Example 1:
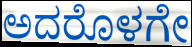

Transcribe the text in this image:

ಅದರೊಳಗೇ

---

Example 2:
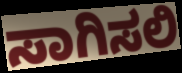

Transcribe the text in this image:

ಸಾಗಿಸಲಿ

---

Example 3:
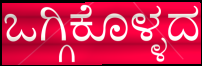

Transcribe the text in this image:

ಒಗ್ಗಿಕೊಳ್ಳದ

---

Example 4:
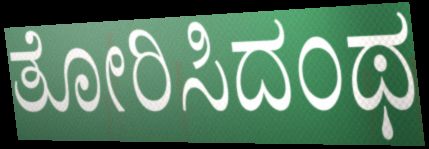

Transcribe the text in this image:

ತೋರಿಸಿದಂಥ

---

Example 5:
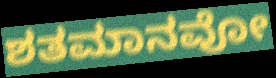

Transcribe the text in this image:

ಶತಮಾನವೋ